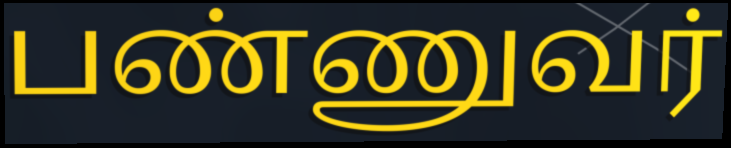
பண்ணுவர்